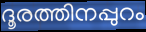
ദൂരത്തിനപ്പുറം